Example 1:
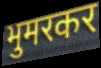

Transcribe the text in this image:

भुमरकर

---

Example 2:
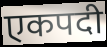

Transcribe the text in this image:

एकपदी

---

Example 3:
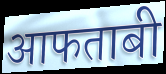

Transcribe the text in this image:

आफताबी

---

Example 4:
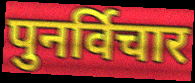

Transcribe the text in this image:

पुनर्विचार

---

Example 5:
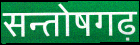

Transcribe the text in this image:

सन्तोषगढ़